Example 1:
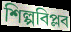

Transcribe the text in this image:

শিল্পবিপ্লব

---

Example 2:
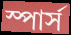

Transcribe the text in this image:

স্পার্স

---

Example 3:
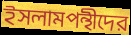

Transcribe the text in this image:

ইসলামপন্থীদের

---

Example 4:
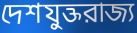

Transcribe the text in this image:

দেশযুক্তরাজ্য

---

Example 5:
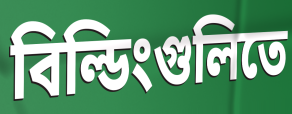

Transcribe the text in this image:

বিল্ডিংগুলিতে